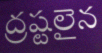
ద్రష్టలైన